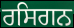
ਰਸਿਗਨ